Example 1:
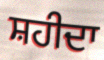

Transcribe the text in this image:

ਸ਼ਹੀਦਾ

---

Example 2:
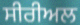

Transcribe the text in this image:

ਸੀਰੀਅਲ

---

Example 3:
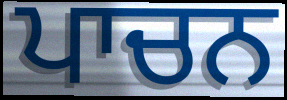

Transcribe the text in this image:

ਪਾਚਨ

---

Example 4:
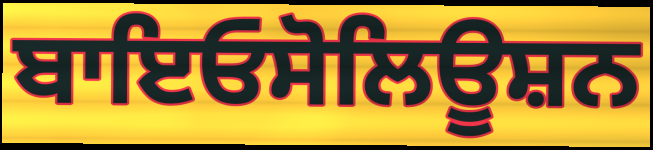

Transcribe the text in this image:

ਬਾਇਓਸੋਲਿਊਸ਼ਨ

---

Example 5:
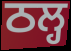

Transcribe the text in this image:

ਠਲ੍ਹ